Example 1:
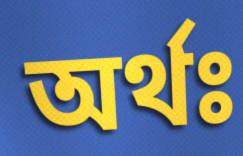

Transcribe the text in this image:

অৰ্থঃ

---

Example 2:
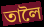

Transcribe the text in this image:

তালৈ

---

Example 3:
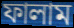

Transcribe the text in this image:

ফালাম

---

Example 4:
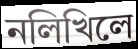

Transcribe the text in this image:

নলিখিলে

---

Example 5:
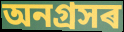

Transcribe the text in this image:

অনগ্ৰসৰ